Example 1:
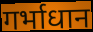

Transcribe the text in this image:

गर्भाधान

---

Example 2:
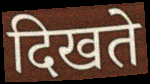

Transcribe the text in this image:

दिखते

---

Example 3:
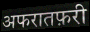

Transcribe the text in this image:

अफरातफ़री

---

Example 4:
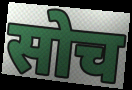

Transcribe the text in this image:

सोच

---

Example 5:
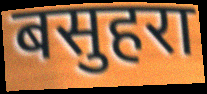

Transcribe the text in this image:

बसुहरा